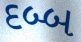
દબ્બ